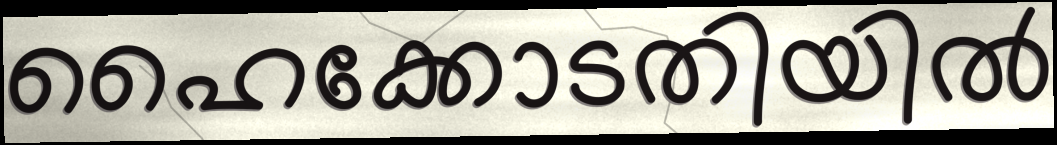
ഹൈക്കോടതിയിൽ